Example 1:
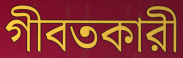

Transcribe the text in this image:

গীবতকারী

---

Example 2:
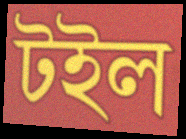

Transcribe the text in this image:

টইল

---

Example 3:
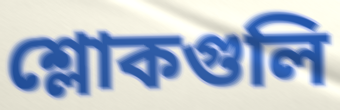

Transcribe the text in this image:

শ্লোকগুলি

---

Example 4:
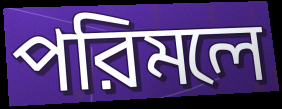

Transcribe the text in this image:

পরিমলে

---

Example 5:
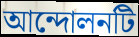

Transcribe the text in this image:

আন্দোলনটি